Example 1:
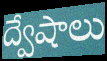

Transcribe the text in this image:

ద్వేషాలు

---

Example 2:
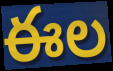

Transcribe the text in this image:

ఈల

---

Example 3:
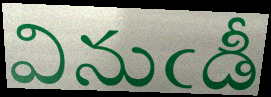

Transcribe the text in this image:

వినుఁడీ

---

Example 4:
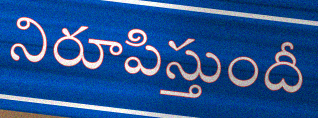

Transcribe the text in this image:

నిరూపిస్తుందీ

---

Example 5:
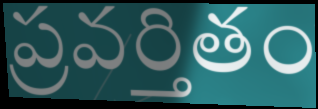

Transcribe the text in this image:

ప్రవర్తితం